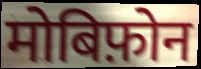
मोबिफ़ोन